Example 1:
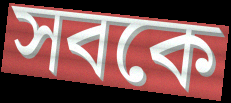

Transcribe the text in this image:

সবকে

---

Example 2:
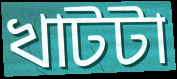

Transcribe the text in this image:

খাটটা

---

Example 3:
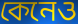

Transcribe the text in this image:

কেনেও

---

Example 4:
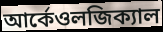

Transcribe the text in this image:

আর্কেওলজিক্যাল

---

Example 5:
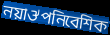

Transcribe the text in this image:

নয়াঔপনিবেশিক